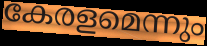
കേരളമെന്നും